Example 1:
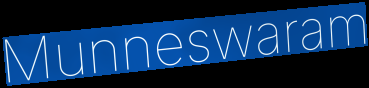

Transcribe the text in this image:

Munneswaram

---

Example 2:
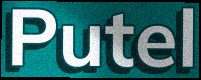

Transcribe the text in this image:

Putel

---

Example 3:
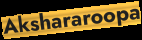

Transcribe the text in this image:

Akshararoopa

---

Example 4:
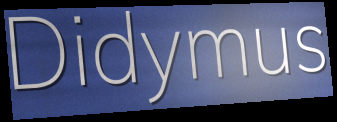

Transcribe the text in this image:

Didymus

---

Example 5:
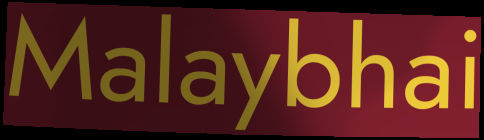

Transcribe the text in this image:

Malaybhai